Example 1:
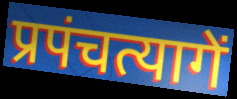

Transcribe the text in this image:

प्रपंचत्यागें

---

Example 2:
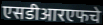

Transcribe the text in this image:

एसडीआरएफचे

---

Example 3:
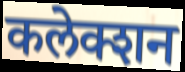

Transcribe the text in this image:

कलेक्शन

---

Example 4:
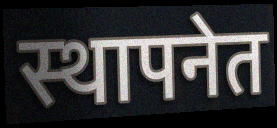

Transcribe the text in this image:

स्थापनेत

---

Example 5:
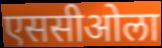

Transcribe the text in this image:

एससीओला